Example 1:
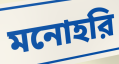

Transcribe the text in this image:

মনোহরি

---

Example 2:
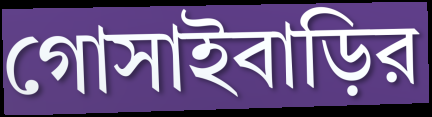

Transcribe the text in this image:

গোসাইবাড়ির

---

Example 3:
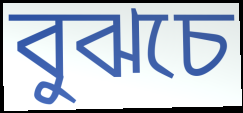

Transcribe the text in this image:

বুঝচে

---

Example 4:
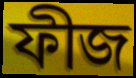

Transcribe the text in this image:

ফীজ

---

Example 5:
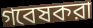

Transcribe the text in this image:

গবেষকরা